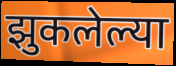
झुकलेल्या